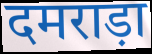
दमराड़ा